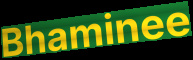
Bhaminee